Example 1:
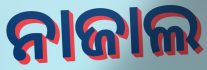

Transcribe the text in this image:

ନାଜାଲ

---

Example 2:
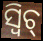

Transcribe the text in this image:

ସ୍ଵିଚ୍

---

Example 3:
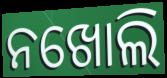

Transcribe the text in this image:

ନଖୋଲି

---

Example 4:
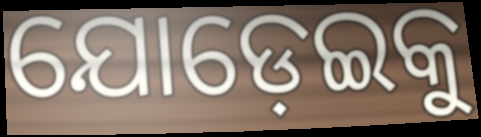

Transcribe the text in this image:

ଯୋଡ଼େଇକୁ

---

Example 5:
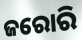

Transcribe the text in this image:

ଜରୋରି